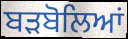
ਬੜਬੋਲਿਆਂ